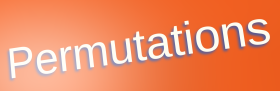
Permutations